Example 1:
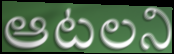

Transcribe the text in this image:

ఆటలని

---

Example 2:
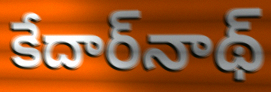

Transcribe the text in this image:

కేదార్‌నాథ్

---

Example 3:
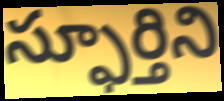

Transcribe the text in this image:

స్ఫూర్తిని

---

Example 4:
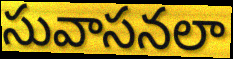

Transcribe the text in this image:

సువాసనలా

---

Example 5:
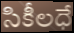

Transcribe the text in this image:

సికీలధే